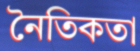
নৈতিকতা